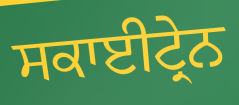
ਸਕਾਈਟ੍ਰੇਨ